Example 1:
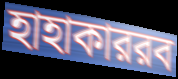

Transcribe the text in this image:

হাহাকাররব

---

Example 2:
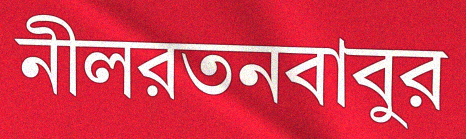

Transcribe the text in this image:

নীলরতনবাবুর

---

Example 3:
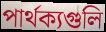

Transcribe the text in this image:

পার্থক্যগুলি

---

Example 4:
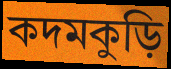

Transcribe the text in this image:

কদমকুড়ি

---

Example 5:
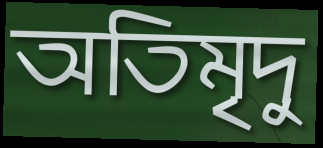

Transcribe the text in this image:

অতিমৃদু